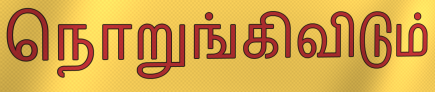
நொறுங்கிவிடும்